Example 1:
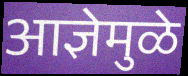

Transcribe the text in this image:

आज्ञेमुळे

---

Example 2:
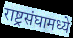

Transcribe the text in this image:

राष्ट्रसंघामध्ये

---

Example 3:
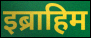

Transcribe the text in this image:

इब्राहिम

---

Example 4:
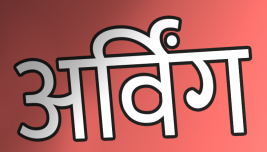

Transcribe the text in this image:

अर्विंग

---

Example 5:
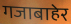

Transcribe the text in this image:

गजाबाहेर